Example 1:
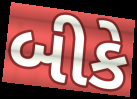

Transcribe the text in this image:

બીકે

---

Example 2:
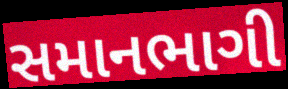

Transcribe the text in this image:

સમાનભાગી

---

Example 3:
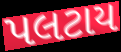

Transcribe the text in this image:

પલટાય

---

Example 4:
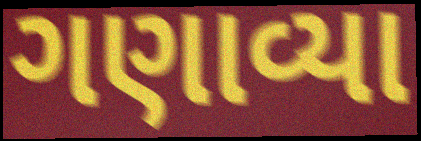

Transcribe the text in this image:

ગણાવ્યા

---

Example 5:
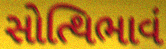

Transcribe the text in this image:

સોત્થિભાવં